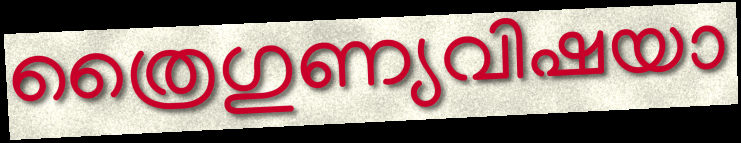
ത്രൈഗുണ്യവിഷയാ